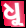
ଧୁ